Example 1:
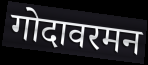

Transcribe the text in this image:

गोदावरमन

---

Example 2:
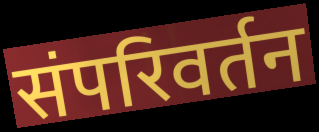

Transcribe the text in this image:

संपरिवर्तन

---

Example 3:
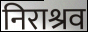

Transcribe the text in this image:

निराश्रव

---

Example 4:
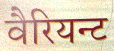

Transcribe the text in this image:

वैरियन्ट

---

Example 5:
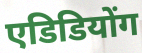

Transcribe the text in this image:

एडिडियोंग